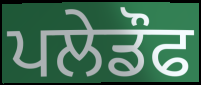
ਪਲੇਡੌਫ